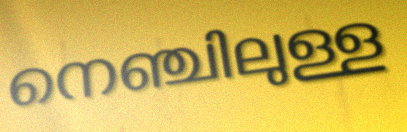
നെഞ്ചിലുള്ള